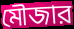
মৌজার